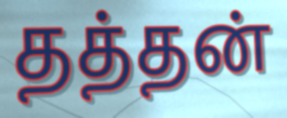
தத்தன்